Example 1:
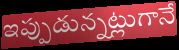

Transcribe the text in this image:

ఇప్పుడున్నట్లుగానే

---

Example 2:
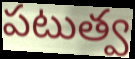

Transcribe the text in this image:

పటుత్వ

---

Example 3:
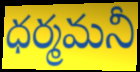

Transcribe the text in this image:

ధర్మమనీ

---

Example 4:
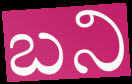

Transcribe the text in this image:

బని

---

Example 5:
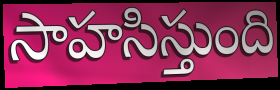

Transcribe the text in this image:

సాహసిస్తుంది